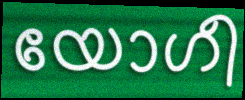
യോഗീ